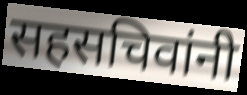
सहसचिवांनी